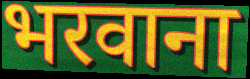
भरवाना